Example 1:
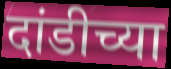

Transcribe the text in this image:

दांडीच्या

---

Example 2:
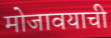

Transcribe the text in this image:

मोजावयाची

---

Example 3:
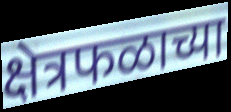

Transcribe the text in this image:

क्षेत्रफळाच्या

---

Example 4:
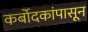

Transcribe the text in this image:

कर्बोदकांपासून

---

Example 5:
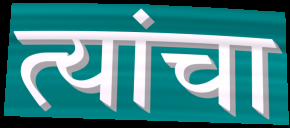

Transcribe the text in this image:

त्‍यांचा